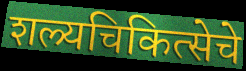
शल्यचिकित्सेचे